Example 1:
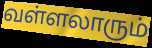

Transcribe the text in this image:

வள்ளலாரும்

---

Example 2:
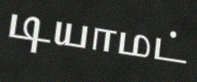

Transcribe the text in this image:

டியாமட்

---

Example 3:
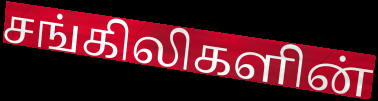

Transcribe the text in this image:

சங்கிலிகளின்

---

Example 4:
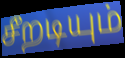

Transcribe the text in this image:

சீறடியும்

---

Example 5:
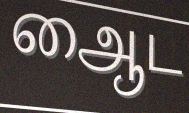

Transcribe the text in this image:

ஆைட